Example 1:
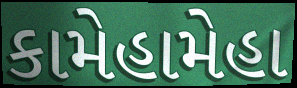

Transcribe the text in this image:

કામેહામેહા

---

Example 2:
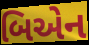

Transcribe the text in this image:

બિએન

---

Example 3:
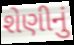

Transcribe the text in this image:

શેણીનું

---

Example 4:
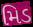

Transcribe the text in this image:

મિડ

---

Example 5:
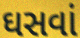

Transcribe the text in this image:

ઘસવાં